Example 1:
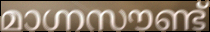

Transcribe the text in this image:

മാഗ്നസൗണ്ട്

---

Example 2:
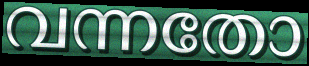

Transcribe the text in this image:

വന്നതോ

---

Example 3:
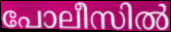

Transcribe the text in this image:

പോലീസിൽ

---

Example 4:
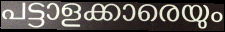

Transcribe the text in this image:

പട്ടാളക്കാരെയും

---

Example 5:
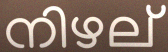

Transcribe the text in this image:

നിഴല്